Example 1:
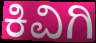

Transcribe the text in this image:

ಕಿವಿಗಿ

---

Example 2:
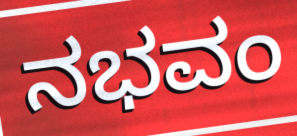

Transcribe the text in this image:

ನಭವಂ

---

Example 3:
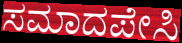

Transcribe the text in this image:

ಸಮಾದಪೇಸಿ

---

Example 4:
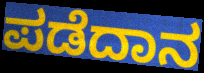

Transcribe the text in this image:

ಪಡೆದಾನ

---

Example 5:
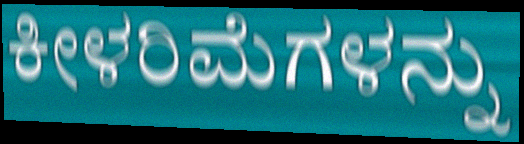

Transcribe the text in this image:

ಕೀಳರಿಮೆಗಳನ್ನು